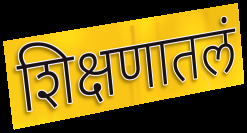
शिक्षणातलं